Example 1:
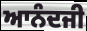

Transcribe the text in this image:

ਆਨੰਦਜੀ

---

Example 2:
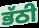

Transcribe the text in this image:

ਭੱਠੀ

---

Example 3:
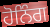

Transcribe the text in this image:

ਹੋਨਿੰਗ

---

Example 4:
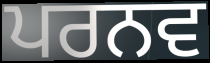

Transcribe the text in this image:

ਪਰਨਵ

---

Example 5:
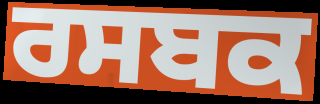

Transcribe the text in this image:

ਰਸਬਕ